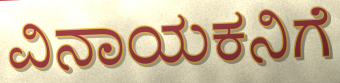
ವಿನಾಯಕನಿಗೆ